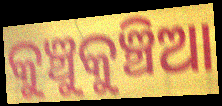
କୁଞ୍ଚୁକୁଞ୍ଚିଆ